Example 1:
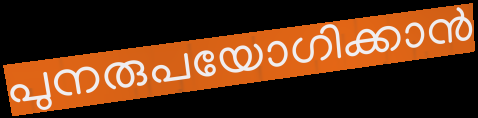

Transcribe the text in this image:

പുനരുപയോഗിക്കാൻ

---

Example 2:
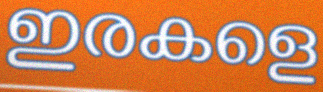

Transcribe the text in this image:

ഇരകളെ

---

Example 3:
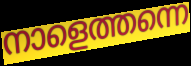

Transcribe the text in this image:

നാളെത്തന്നെ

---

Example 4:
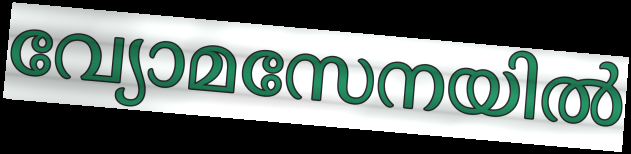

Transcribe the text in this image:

വ്യോമസേനയിൽ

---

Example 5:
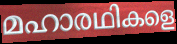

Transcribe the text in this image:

മഹാരഥികളെ